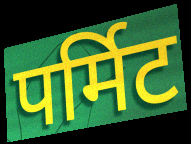
पर्मिट